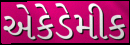
એકેડેમીક